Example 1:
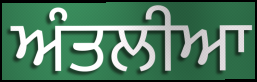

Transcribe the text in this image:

ਅੰਤਲੀਆ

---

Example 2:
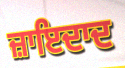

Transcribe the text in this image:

ਜ਼ਾਇਦਾਦ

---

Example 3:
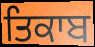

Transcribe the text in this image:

ਤਿਕਾਬ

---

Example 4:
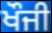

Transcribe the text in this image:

ਖੌਜੀ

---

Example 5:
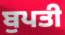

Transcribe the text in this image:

ਬੁਪਤੀ